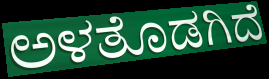
ಅಳತೊಡಗಿದೆ